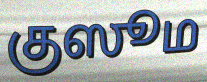
குஸூம